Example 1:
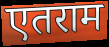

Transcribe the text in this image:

एतराम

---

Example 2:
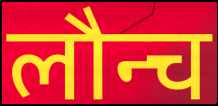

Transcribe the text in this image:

लौन्च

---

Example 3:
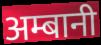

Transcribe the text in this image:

अम्‍बानी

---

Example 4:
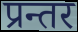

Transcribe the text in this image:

प्रन्तर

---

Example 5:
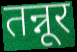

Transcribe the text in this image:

तन्नूर